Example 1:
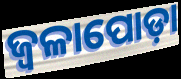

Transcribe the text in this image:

ଜ୍ୱଳାପୋଡ଼ା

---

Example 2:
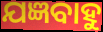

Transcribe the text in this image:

ଯଜ୍ଞବାହୁ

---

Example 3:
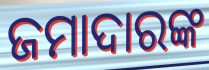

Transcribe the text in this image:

ଜମାଦାରଙ୍କ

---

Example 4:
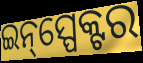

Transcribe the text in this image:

ଇନ୍‌ସ୍ପେକ୍ଟର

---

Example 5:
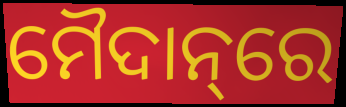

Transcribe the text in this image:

ମୈଦାନ୍‌ରେ